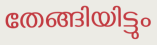
തേങ്ങിയിട്ടും